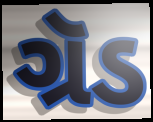
ગ્રૅડ